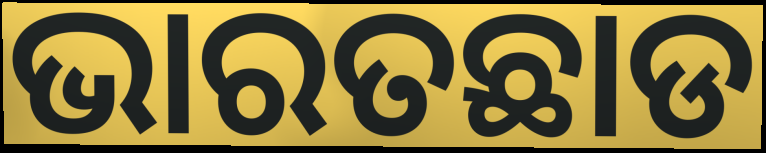
ଭାରତଛାଡ